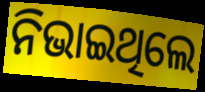
ନିଭାଇଥିଲେ